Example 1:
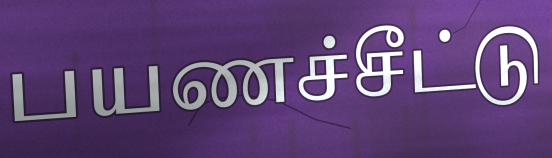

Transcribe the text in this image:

பயணச்சீட்டு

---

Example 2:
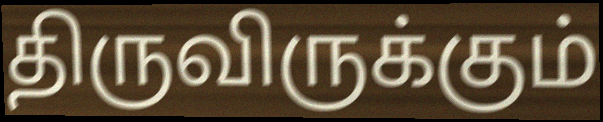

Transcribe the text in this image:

திருவிருக்கும்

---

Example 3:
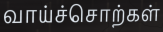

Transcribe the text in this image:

வாய்ச்சொற்கள்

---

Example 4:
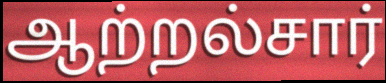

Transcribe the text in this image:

ஆற்றல்சார்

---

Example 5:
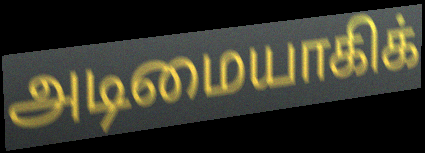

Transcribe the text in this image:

அடிமையாகிக்